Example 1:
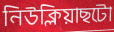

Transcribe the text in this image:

নিউক্লিয়াছটো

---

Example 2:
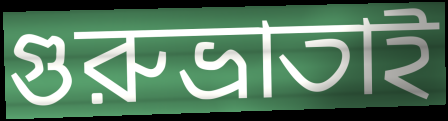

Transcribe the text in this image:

গুৰুভ্ৰাতাই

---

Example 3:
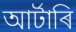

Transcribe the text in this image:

আৰ্টাৰি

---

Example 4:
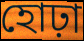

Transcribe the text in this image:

হোঢ়া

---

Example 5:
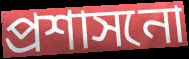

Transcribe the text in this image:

প্ৰশাসনো